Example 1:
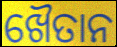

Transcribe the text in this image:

ଖୈତାନ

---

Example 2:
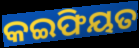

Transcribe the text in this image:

କଇଫିୟତ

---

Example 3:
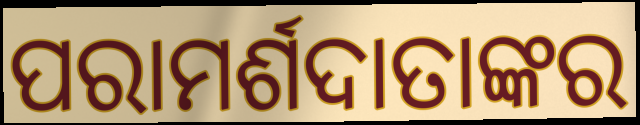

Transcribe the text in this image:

ପରାମର୍ଶଦାତାଙ୍କର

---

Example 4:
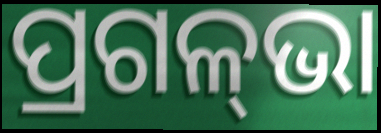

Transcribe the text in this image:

ପ୍ରଗଳ୍‌ଭା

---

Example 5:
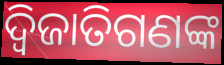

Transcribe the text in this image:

ଦ୍ୱିଜାତିଗଣଙ୍କ